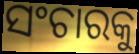
ସଂଚାରକୁ